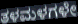
ತಳಮಳಗಳೇ